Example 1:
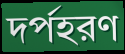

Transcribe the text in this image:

দর্পহরণ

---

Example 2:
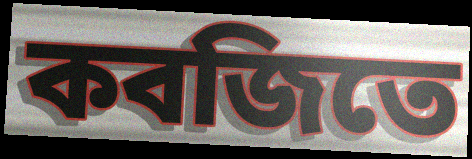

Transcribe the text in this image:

কবজিতে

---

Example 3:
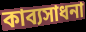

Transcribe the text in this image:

কাব্যসাধনা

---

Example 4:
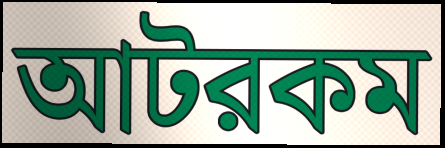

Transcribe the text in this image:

আটরকম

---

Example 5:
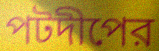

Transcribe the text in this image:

পটদীপের